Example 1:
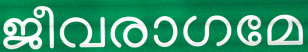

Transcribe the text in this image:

ജീവരാഗമേ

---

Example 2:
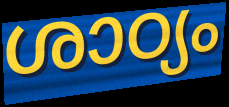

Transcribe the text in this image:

ശാഠ്യം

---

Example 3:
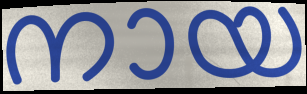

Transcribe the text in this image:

നായ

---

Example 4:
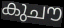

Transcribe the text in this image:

കുചൗ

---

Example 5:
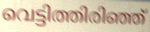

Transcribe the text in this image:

വെട്ടിത്തിരിഞ്ഞ്